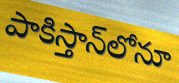
పాకిస్తాన్‌లోనూ